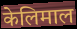
केलिमाल